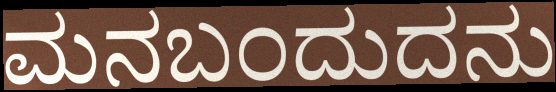
ಮನಬಂದುದನು